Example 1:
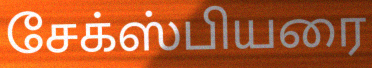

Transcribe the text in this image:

சேக்ஸ்பியரை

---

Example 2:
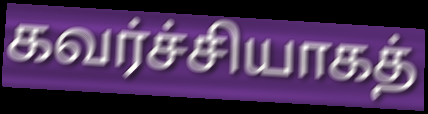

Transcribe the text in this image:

கவர்ச்சியாகத்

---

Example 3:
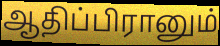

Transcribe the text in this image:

ஆதிப்பிரானும்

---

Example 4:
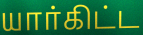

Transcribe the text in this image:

யார்கிட்ட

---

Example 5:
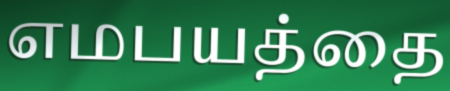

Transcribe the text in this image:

எமபயத்தை